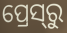
ପ୍ରେସ୍‍ରୁ